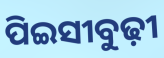
ପିଇସୀବୁଢ଼ୀ